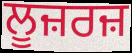
ਲੂਜ਼ਰਜ਼